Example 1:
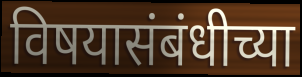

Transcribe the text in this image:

विषयासंबंधीच्या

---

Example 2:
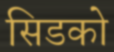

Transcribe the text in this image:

सिडको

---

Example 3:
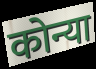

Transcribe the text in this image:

कोन्या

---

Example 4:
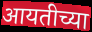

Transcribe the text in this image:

आयतीच्या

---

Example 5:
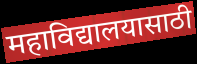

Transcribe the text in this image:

महाविद्यालयासाठी